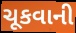
ચૂકવાની